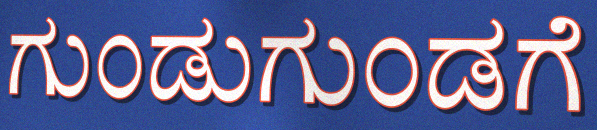
ಗುಂಡುಗುಂಡಗೆ